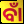
ବାଁ